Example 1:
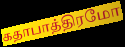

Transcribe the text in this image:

கதாபாத்திரமோ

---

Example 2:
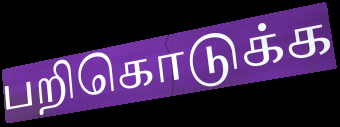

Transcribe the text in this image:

பறிகொடுக்க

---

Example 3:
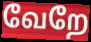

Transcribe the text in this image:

வேறே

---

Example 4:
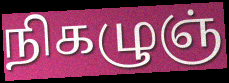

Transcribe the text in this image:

நிகழுஞ்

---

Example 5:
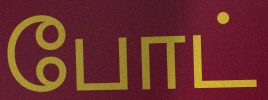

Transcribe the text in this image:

போட்